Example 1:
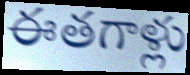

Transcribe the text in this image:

ఈతగాళ్లు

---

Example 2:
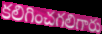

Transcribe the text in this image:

కలిగించగలిగారు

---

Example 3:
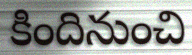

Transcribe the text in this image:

కిందినుంచి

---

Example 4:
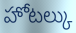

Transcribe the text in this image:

హోటల్కు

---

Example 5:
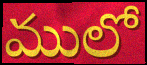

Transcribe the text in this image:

ములో